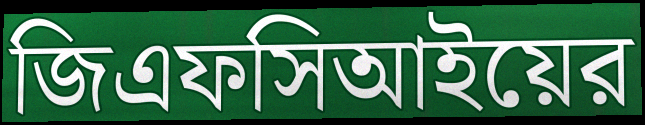
জিএফসিআইয়ের